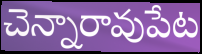
చెన్నారావుపేట